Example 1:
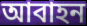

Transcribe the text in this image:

আবাহন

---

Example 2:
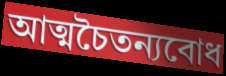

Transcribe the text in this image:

আত্মচৈতন্যবোধ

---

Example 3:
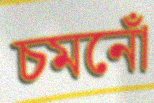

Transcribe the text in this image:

চমনোঁ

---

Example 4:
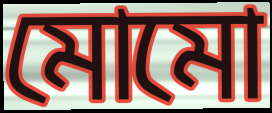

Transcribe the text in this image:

মোমো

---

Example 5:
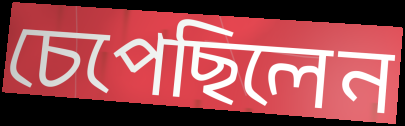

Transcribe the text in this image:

চেপেছিলেন